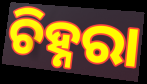
ଚିହ୍ନରା